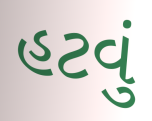
હટવું